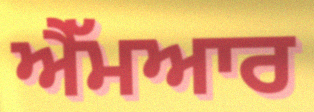
ਐੱਮਆਰ